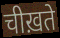
चीख़ते